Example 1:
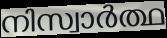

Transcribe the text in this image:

നിസ്വാർത്ഥ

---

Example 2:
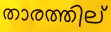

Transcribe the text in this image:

താരത്തില്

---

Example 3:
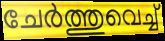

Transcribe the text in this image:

ചേർത്തുവെച്ച്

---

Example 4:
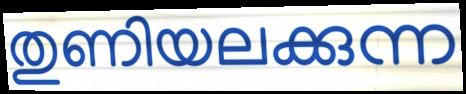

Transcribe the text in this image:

തുണിയലക്കുന്ന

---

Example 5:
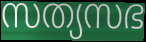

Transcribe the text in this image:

സത്യസഭ